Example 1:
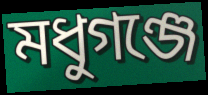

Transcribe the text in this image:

মধুগঞ্জে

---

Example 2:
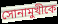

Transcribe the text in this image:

সোনামুখীকে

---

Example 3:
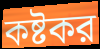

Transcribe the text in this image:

কষ্টকর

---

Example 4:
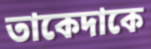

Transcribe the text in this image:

তাকেদাকে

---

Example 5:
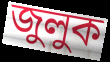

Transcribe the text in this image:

জুলুক